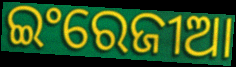
ଇଂରେଜୀଆ